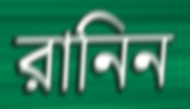
রানিন